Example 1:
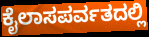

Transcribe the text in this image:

ಕೈಲಾಸಪರ್ವತದಲ್ಲಿ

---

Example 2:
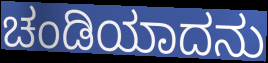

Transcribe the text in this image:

ಚಂಡಿಯಾದನು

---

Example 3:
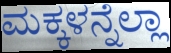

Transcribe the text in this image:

ಮಕ್ಕಳನ್ನೆಲ್ಲಾ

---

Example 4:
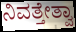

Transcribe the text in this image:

ನಿವತ್ತೇತ್ವಾ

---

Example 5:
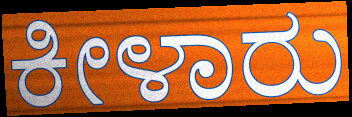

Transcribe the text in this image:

ಕೀಳಾರು